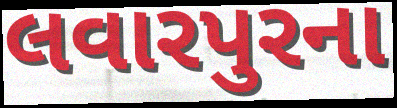
લવારપુરના